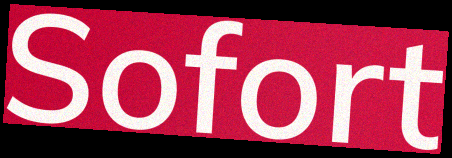
Sofort